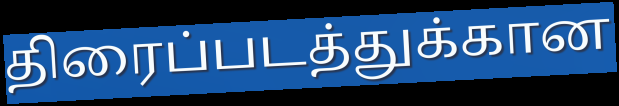
திரைப்படத்துக்கான